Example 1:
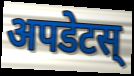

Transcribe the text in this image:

अपडेटस्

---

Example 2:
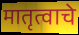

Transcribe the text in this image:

मातृत्वाचे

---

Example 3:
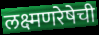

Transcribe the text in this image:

लक्ष्मणरेषेची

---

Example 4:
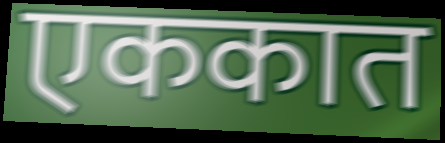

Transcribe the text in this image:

एककात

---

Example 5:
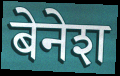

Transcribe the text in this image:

बेनेश